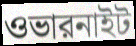
ওভারনাইট